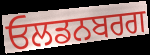
ਓਲਡਨਬਰਗ